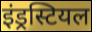
इंड्रस्टियल